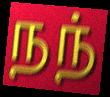
நந்